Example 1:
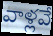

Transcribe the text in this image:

వాళ్లవే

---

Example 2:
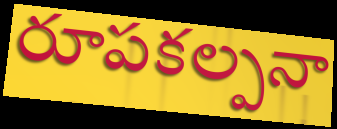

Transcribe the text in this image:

రూపకల్పనా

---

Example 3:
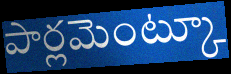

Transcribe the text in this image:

పార్లమెంట్కూ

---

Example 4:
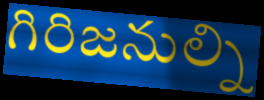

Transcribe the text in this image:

గిరిజనుల్ని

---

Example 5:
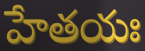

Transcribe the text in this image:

హేతయః